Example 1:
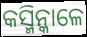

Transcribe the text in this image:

କସ୍ମିନ୍କାଳେ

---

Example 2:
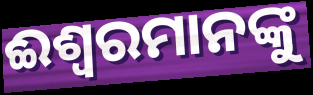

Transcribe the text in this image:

ଈଶ୍ୱରମାନଙ୍କୁ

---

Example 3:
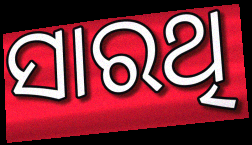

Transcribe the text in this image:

ସାରଥି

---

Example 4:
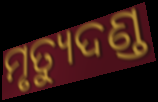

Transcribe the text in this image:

ମୃତ୍ୟୁଦଣ୍ଡ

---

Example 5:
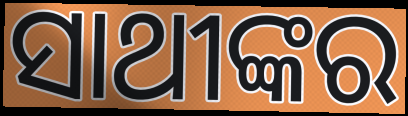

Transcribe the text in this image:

ସାଥୀଙ୍କର